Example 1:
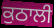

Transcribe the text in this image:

ਕੁਠਾਲੀ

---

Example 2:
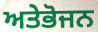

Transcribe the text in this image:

ਅਤੇਭੋਜਨ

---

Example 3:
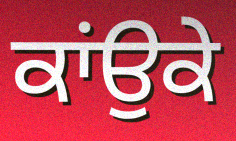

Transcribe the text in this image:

ਕਾਂਉਕੇ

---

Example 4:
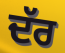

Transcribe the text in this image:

ਦੱਰ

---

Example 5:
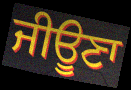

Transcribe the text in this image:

ਜੀਊਣਾ